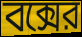
বক্সের